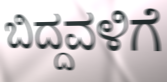
ಬಿದ್ದವಳಿಗೆ